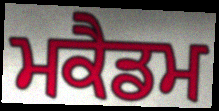
ਮਕੈਡਮ